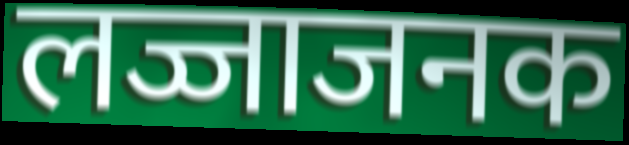
लज्जाजनक